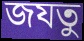
জযতু